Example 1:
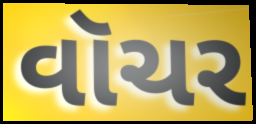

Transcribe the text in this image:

વૉચર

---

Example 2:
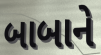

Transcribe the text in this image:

બાબાને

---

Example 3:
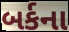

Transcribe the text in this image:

બર્કના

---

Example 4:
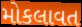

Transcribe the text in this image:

મોકલાવત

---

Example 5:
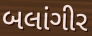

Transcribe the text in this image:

બલાંગીર